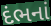
દંભનાં